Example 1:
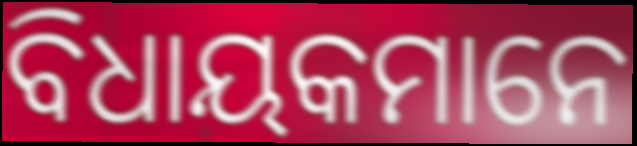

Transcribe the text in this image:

ବିଧାୟକମାନେ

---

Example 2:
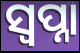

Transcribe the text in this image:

ସ୍ଵପ୍ନା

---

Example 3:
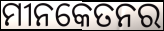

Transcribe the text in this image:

ମୀନକେତନର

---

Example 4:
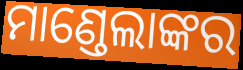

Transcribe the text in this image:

ମାଣ୍ଡେଲାଙ୍କର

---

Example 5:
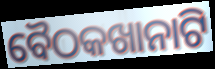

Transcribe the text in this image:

ବୈଠକଖାନାଟି